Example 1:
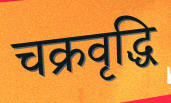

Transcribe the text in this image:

चक्रवृद्धि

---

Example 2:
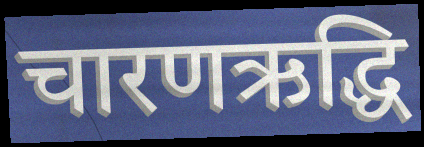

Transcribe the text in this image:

चारणऋद्धि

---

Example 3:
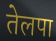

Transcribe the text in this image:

तेलपा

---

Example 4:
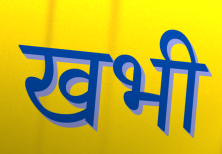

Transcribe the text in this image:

खभी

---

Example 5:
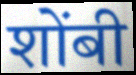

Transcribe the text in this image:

शोंबी